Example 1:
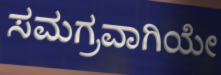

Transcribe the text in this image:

ಸಮಗ್ರವಾಗಿಯೇ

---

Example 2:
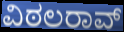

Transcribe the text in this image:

ವಿಠಲರಾವ್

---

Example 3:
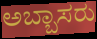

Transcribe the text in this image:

ಅಬ್ಬಾಸರು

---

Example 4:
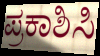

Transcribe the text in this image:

ಪ್ರಕಾಶಿಸಿ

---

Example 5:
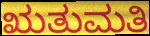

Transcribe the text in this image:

ಋತುಮತಿ